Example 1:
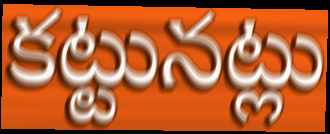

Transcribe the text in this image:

కట్టునట్లు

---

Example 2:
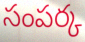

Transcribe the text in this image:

సంపర్క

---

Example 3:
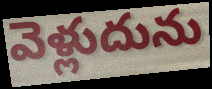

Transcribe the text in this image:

వెళ్లుదును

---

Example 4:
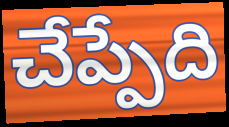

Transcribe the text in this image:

చేప్పేది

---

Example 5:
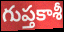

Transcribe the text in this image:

గుప్తకాశీ